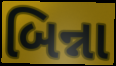
બિન્ના